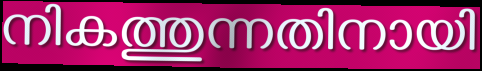
നികത്തുന്നതിനായി